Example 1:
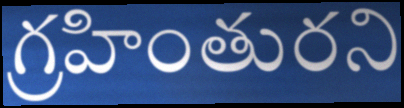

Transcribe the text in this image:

గ్రహింతురని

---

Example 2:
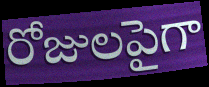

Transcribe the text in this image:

రోజులపైగా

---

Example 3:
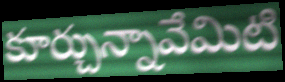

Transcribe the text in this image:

కూర్చున్నావేమిటి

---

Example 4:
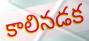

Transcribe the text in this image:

కాలినడక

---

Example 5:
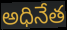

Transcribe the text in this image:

అధినేత